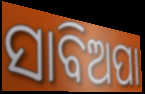
ସାବିଅପା